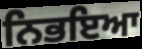
ਨਿਭਇਆ